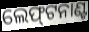
ଲେଫ୍‌ଟନାଣ୍ଟ